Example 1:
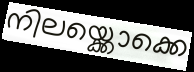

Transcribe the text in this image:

നിലയ്ക്കൊക്കെ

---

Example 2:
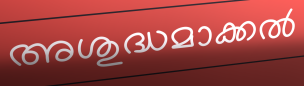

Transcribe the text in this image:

അശുദ്ധമാക്കൽ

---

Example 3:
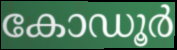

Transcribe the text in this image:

കോഡൂർ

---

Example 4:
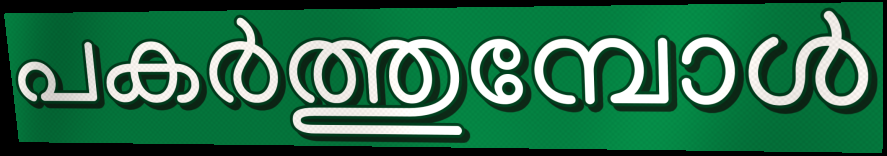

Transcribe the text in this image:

പകർത്തുമ്പോൾ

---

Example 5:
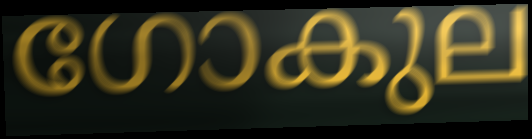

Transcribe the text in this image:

ഗോകുല